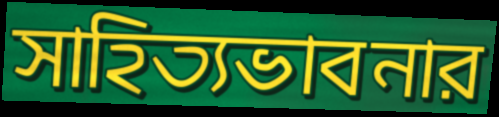
সাহিত্যভাবনার